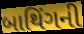
બાથિંગની